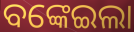
ବଙ୍କେଇଲା